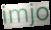
imjo